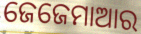
ଜେଜେମାଆର